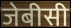
जेबीसी